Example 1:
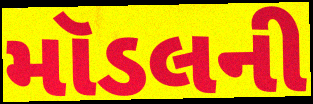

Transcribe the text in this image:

મૉડલની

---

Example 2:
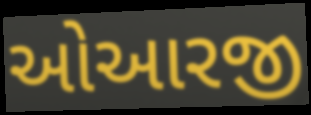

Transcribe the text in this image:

ઓઆરજી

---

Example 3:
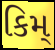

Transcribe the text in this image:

કિમ્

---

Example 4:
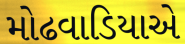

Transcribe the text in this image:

મોઢવાડિયાએ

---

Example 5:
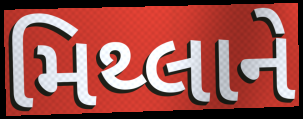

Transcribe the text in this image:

મિથ્લાને